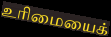
உரிமையைக்